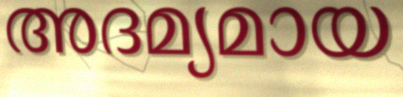
അദമ്യമായ